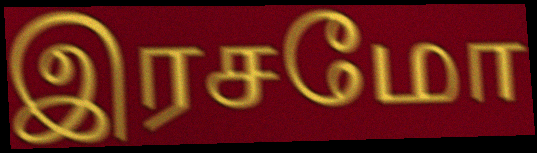
இரசமோ